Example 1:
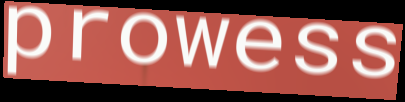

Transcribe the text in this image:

prowess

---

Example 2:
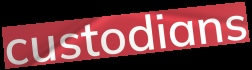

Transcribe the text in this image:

custodians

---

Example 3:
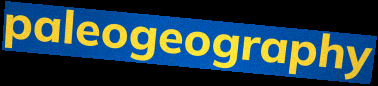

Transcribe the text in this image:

paleogeography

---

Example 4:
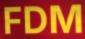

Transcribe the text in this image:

FDM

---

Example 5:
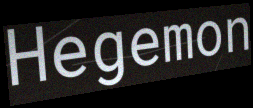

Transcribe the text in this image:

Hegemon